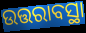
ଉତ୍ତରାବସ୍ଥା